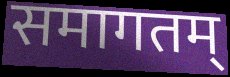
समागतम्